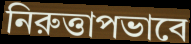
নিরুত্তাপভাবে